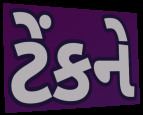
ટેંકને